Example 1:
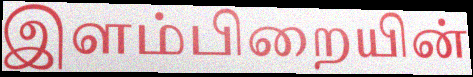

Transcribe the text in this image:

இளம்பிறையின்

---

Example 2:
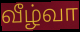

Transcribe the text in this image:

வீழ்வா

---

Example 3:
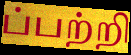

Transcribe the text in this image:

ப்பற்றி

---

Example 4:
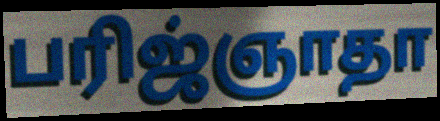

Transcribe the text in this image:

பரிஜ்ஞாதா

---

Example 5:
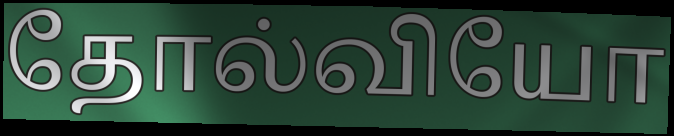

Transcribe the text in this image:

தோல்வியோ